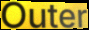
Outer